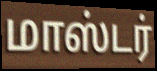
மாஸ்டர்